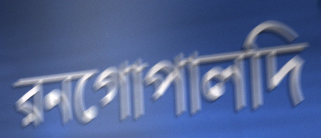
রনগোপালদি